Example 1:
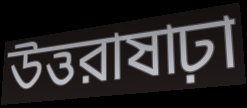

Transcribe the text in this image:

উত্তরাষাঢ়া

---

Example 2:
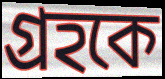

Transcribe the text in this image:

গ্রহকে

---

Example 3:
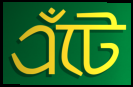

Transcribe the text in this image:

এঁটে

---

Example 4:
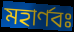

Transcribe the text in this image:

মহার্ণবঃ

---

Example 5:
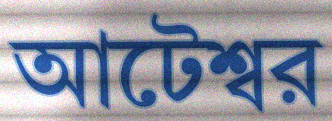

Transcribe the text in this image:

আটেশ্বর